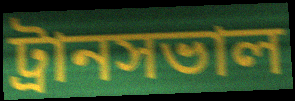
ট্রানসভাল